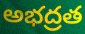
అభద్రత